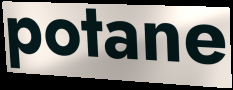
potane